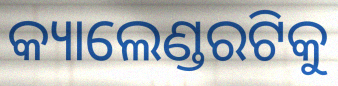
କ୍ୟାଲେଣ୍ଡରଟିକୁ